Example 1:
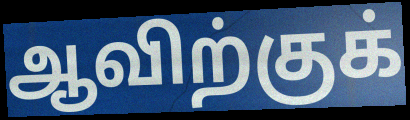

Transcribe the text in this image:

ஆவிற்குக்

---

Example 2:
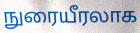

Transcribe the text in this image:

நுரையீரலாக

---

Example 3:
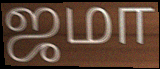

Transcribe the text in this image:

ஜமா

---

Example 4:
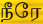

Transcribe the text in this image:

நீரே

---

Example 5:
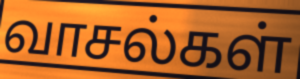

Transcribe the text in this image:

வாசல்கள்